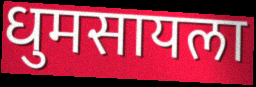
धुमसायला